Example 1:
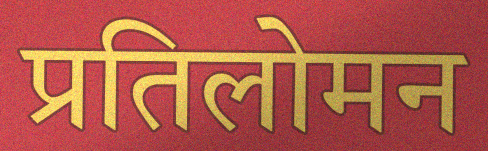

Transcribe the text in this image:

प्रतिलोमन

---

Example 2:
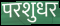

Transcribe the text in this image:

परशुधर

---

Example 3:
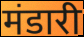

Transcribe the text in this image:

मंडारी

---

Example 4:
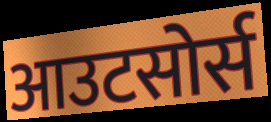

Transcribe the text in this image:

आउटसोर्स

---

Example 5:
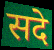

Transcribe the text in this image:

सदे